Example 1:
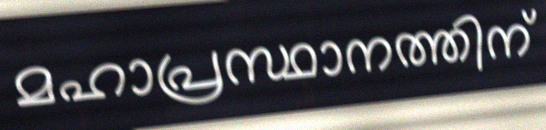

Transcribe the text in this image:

മഹാപ്രസ്ഥാനത്തിന്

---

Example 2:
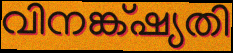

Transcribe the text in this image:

വിനങ്ക്ഷ്യതി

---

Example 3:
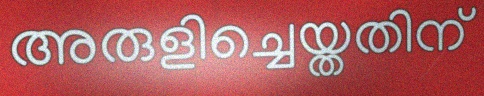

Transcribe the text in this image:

അരുളിച്ചെയ്തതിന്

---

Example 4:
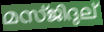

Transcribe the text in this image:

മസ്ജിദുല്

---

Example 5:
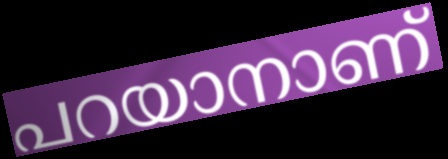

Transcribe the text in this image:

പറയാനാണ്